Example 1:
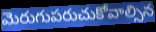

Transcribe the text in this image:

మెరుగుపరుచుకోవాల్సిన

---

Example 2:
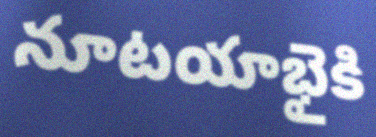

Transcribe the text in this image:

నూటయాభైకి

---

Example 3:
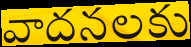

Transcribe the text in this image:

వాదనలకు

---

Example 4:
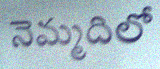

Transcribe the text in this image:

నెమ్మదిలో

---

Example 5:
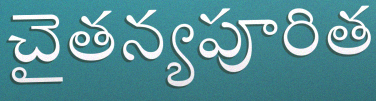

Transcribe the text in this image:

చైతన్యపూరిత